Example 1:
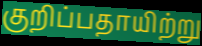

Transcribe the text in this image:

குறிப்பதாயிற்று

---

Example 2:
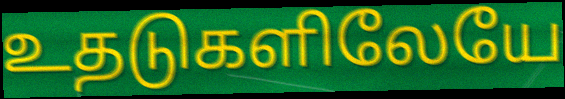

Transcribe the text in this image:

உதடுகளிலேயே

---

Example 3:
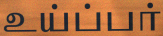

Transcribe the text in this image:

உய்ப்பர்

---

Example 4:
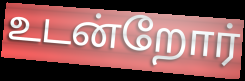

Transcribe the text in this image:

உடன்றோர்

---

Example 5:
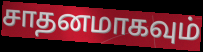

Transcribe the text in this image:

சாதனமாகவும்